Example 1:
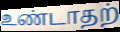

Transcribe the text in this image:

உண்டாதற்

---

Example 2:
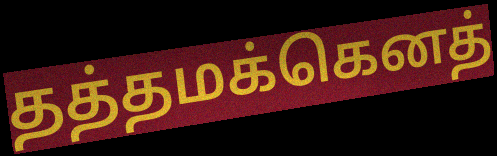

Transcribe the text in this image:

தத்தமக்கெனத்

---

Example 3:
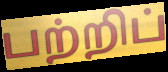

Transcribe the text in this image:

பற்றிப்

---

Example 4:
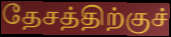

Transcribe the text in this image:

தேசத்திற்குச்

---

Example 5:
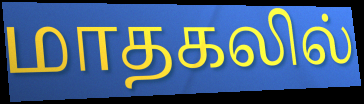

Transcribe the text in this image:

மாதகலில்